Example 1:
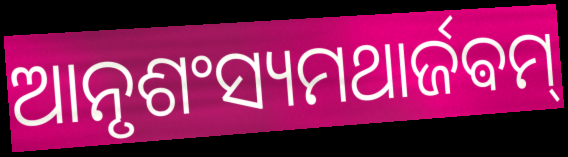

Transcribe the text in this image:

ଆନୃଶଂସ୍ୟମଥାର୍ଜଵମ୍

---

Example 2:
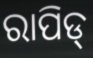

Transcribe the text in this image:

ରାପିଡ୍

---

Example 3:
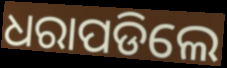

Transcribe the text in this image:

ଧରାପଡିଲେ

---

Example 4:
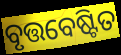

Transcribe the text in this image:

ବୃତ୍ତବେଷ୍ଟିତ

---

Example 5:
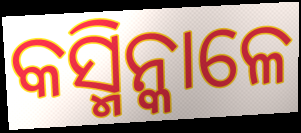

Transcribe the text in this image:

କସ୍ମିନ୍କାଳେ